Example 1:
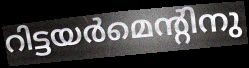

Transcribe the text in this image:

റിട്ടയർമെന്റിനു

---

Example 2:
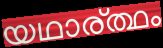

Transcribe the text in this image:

യഥാര്ത്ഥം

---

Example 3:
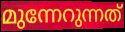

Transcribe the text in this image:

മുന്നേറുന്നത്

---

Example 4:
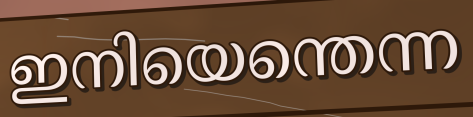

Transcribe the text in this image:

ഇനിയെന്തെന്ന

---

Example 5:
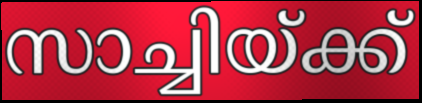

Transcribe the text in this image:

സാച്ചിയ്ക്ക്